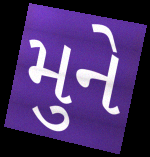
મુને